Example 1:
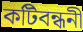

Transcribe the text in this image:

কটিবন্ধনী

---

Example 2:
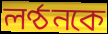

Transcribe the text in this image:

লণ্ঠনকে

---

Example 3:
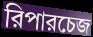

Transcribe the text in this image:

রিপারচেজ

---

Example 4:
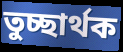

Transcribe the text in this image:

তুচ্ছার্থক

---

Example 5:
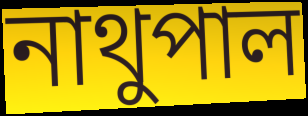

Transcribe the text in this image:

নাথুপাল